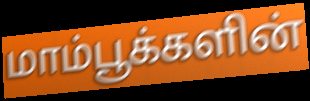
மாம்பூக்களின்